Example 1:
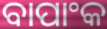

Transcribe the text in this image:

ବାପାଂକ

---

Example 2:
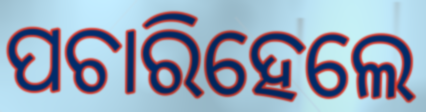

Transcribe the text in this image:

ପଚାରିହେଲେ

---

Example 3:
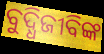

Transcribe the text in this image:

ବୁଦ୍ଧିଜୀବିଙ୍କ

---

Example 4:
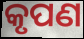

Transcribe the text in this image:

କୃପଣ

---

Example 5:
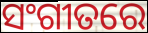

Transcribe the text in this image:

ସଂଗୀତରେ